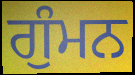
ਗੁੰਮਨ